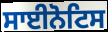
ਸਾਈਨੋਟਿਸ